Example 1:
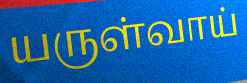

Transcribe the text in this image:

யருள்வாய்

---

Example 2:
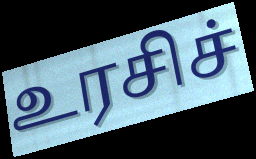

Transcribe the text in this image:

உரசிச்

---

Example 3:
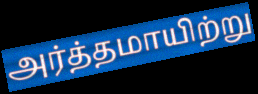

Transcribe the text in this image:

அர்த்தமாயிற்று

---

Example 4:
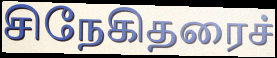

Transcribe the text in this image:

சிநேகிதரைச்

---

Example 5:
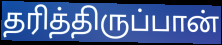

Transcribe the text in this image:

தரித்திருப்பான்